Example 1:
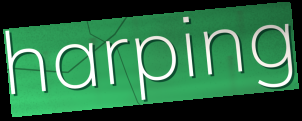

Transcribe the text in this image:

harping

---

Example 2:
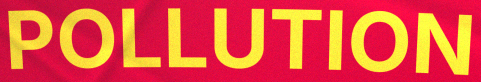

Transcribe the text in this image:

POLLUTION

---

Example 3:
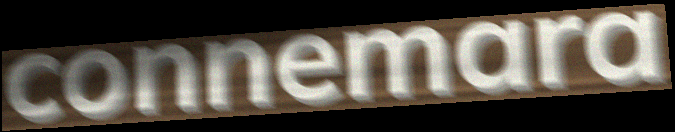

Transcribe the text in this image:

connemara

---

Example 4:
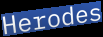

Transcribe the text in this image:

Herodes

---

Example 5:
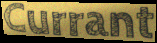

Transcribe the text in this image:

Currant